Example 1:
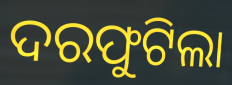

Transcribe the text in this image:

ଦରଫୁଟିଲା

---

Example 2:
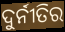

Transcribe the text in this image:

ଦୁର୍ନୀତିର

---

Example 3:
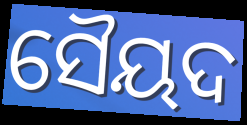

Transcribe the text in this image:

ସୈୟଦ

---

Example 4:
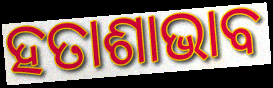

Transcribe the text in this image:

ହତାଶାଭାବ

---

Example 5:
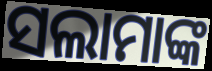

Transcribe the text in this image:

ସଲାମାଙ୍କ